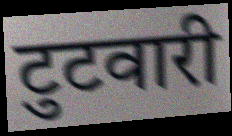
टुटवारी